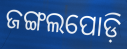
ଜଙ୍ଗଲପୋଡ଼ି